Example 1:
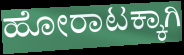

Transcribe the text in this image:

ಹೋರಾಟಕ್ಕಾಗಿ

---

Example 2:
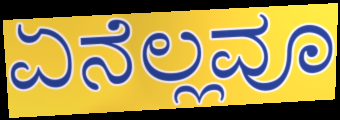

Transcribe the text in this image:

ಏನೆಲ್ಲವೂ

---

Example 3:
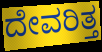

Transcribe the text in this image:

ದೇವರಿತ್ತ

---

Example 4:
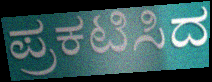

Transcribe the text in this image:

ಪ್ರಕಟಿಸಿದ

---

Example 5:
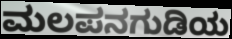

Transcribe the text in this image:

ಮಲಪನಗುಡಿಯ